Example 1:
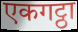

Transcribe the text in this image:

एकगट्ठा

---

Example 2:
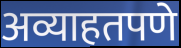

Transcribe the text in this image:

अव्याहतपणे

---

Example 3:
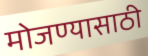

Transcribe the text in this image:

मोजण्यासाठी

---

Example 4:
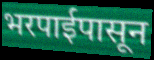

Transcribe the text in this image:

भरपाईपासून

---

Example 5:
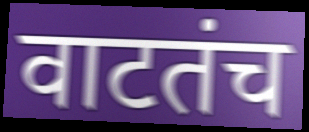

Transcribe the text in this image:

वाटतंच